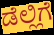
ಡೆಲ್ಲಿಗೆ